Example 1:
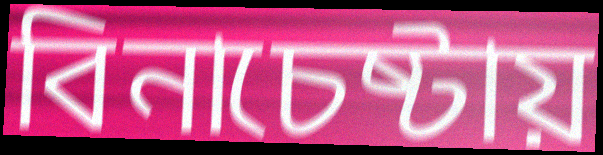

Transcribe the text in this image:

বিনাচেষ্টায়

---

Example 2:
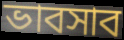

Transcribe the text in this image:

ভাবসাব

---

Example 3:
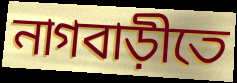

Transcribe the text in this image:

নাগবাড়ীতে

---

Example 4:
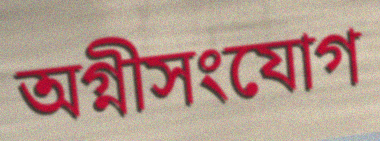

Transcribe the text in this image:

অগ্নীসংযোগ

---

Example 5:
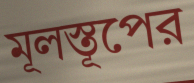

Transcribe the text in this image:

মূলস্তূপের